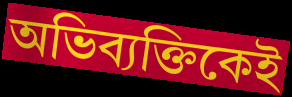
অভিব্যক্তিকেই